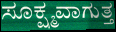
ಸೂಕ್ಷ್ಮವಾಗುತ್ತ